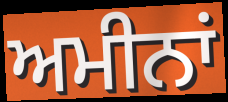
ਅਮੀਨਾਂ